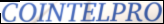
COINTELPRO